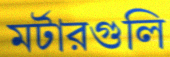
মর্টারগুলি